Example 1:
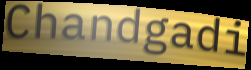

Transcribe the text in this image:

Chandgadi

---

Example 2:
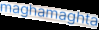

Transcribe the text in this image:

maghamaghta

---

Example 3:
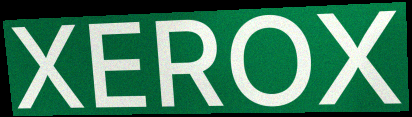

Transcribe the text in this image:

XEROX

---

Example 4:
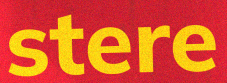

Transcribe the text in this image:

stere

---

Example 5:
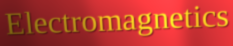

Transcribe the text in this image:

Electromagnetics